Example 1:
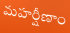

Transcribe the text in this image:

మహర్షీణాం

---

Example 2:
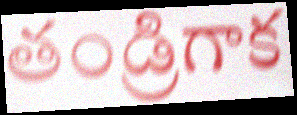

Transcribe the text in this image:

తండ్రిగాక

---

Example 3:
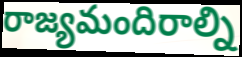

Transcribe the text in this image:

రాజ్యమందిరాల్ని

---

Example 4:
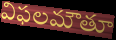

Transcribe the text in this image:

విఫలమౌతూ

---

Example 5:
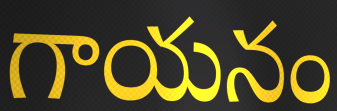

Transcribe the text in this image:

గాయనం